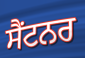
ਸੈਂਟਨਰ